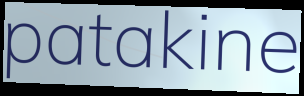
patakine